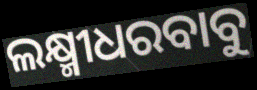
ଲକ୍ଷ୍ମୀଧରବାବୁ